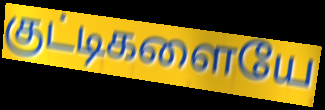
குட்டிகளையே